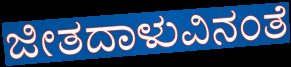
ಜೀತದಾಳುವಿನಂತೆ